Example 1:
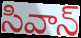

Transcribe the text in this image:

సివాన్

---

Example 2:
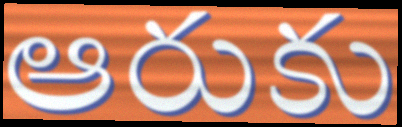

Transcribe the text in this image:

ఆరుకు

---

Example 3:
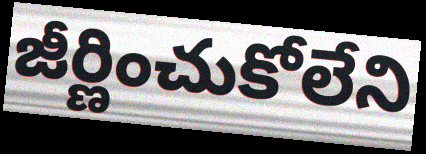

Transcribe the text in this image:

జీర్ణించుకోలేని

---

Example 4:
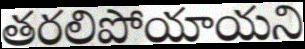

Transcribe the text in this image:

తరలిపోయాయని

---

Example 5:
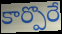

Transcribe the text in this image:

కార్పొరే